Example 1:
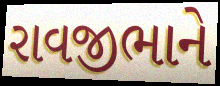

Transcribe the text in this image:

રાવજીભાને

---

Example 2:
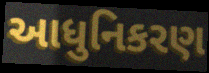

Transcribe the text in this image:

આધુનિકરણ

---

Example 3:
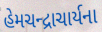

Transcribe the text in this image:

હેમચન્દ્રાચાર્યના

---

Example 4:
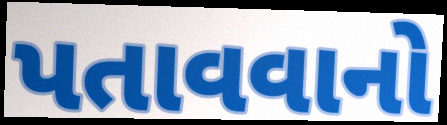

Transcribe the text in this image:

પતાવવાનો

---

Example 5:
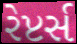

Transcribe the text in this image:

રેપ્ટર્સ